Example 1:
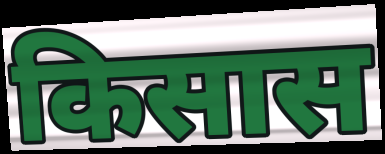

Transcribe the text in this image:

किसास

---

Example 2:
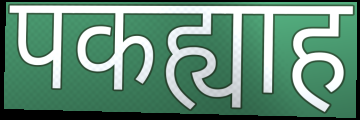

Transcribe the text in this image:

पकह्याह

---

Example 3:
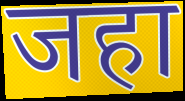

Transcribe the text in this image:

जहा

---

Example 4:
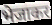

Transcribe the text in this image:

भेजाकर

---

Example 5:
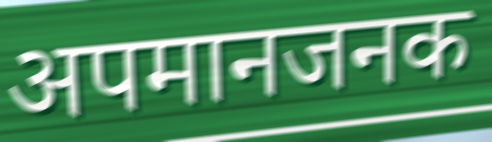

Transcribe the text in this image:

अपमानजनक